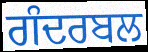
ਗੰਦਰਬਲ